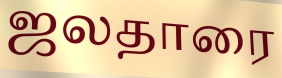
ஜலதாரை